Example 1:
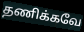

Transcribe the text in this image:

தணிக்கவே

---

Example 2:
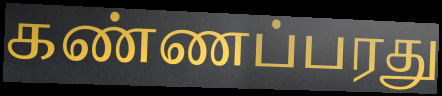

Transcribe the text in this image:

கண்ணப்பரது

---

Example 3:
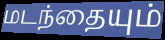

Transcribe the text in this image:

மடந்தையும்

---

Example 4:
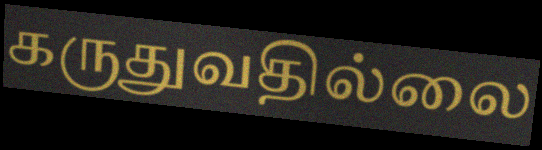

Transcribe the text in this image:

கருதுவதில்லை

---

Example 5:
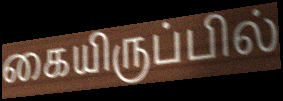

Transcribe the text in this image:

கையிருப்பில்